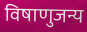
विषाणुजन्य